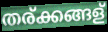
തര്ക്കങ്ങള്